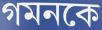
গমনকে